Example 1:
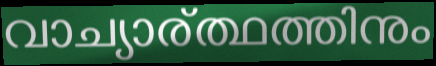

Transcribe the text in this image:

വാച്യാര്ത്ഥത്തിനും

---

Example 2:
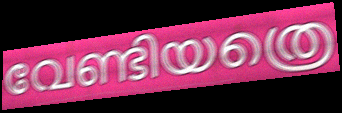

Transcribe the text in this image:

വേണ്ടിയത്രെ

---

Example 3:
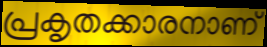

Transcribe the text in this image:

പ്രകൃതക്കാരനാണ്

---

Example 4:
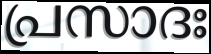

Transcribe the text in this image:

പ്രസാദഃ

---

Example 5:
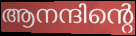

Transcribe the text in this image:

ആനന്ദിന്റെ